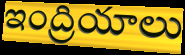
ఇంద్రియాలు